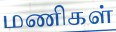
மணிகள்